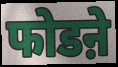
फोडऩे